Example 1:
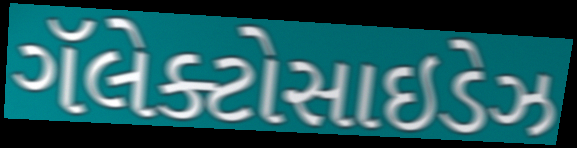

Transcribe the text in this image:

ગૅલેક્ટોસાઇડેઝ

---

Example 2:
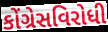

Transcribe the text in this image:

કોંગ્રેસવિરોધી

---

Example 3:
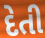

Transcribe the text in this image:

દેતી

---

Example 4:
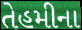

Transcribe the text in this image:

તેહમીના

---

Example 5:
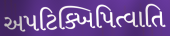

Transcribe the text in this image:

અપટિક્ખિપિત્વાતિ